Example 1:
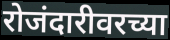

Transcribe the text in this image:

रोजंदारीवरच्या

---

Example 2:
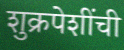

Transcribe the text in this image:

शुक्रपेशींची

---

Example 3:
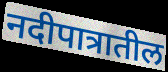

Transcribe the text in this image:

नदीपात्रातील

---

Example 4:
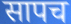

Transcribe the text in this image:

सापच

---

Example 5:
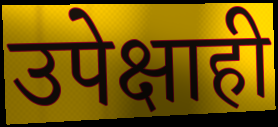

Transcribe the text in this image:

उपेक्षाही